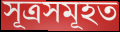
সূত্ৰসমূহত